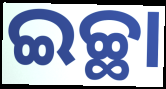
ଇଚ୍ଛା